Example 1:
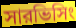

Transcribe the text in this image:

সারভিসিং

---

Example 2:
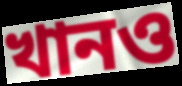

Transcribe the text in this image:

খানও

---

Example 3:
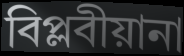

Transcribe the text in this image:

বিপ্লবীয়ানা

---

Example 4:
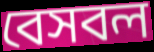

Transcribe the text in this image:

বেসবল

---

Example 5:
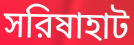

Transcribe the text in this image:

সরিষাহাট